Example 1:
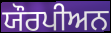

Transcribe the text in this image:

ਯੌਰਪੀਅਨ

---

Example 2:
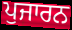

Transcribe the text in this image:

ਪੁਜਾਰਨ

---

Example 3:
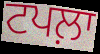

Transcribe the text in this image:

ਟਪਲ਼ਾ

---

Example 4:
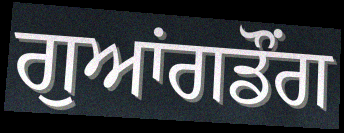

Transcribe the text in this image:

ਗੁਆਂਗਡੌਂਗ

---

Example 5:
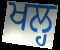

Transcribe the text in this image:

ਖਲ੍ਹ